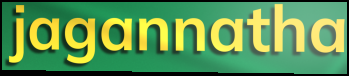
jagannatha